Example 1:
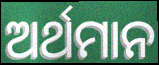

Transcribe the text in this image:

ଅର୍ଥମାନ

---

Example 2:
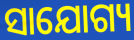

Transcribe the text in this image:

ସାଯୋଗ୍ୟ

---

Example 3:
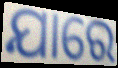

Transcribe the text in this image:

ଯାରେ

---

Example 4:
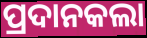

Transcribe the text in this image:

ପ୍ରଦାନକଲା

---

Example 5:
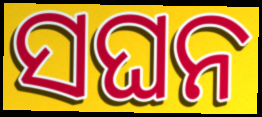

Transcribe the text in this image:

ସଘନ